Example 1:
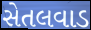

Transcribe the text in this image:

સેતલવાડ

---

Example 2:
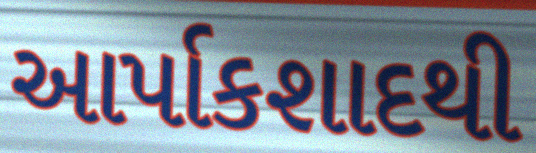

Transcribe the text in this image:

આર્પાકશાદથી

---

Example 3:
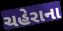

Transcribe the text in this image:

ચહેરાના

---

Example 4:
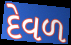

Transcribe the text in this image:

દેવળ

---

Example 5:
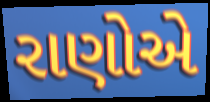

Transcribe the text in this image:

રાણોએ